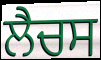
ਲੈਚਸ